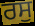
ਰਸੁ